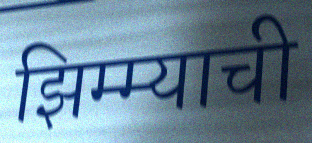
झिम्म्याची